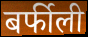
बर्फीली